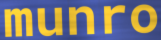
munro